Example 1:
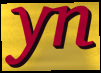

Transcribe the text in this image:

yn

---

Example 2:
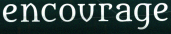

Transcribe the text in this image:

encourage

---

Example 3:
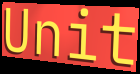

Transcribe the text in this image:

Unit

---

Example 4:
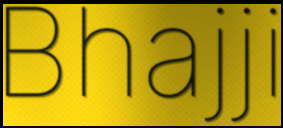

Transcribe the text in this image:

Bhajji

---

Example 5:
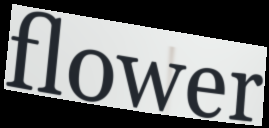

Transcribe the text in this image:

flower